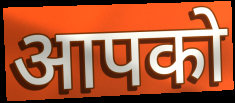
आपको